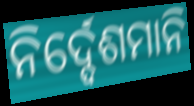
ନିର୍ଦ୍ଦେଶମାନି